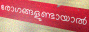
രോഗങ്ങളുണ്ടായാൽ